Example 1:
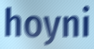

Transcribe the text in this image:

hoyni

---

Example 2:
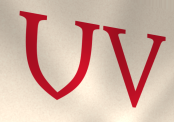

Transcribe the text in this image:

UV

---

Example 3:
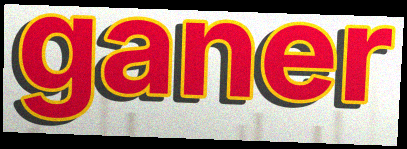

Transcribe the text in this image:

ganer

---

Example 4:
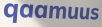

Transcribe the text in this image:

qaamuus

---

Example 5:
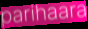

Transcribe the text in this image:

parihaara